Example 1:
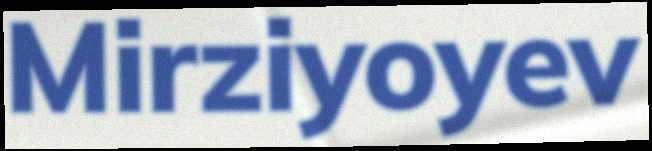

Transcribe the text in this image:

Mirziyoyev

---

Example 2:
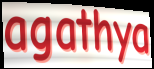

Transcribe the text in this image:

agathya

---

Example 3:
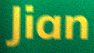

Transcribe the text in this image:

Jian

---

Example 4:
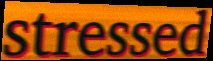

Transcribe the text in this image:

stressed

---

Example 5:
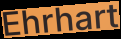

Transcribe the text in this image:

Ehrhart